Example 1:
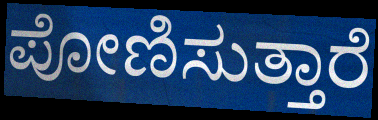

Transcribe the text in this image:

ಪೋಣಿಸುತ್ತಾರೆ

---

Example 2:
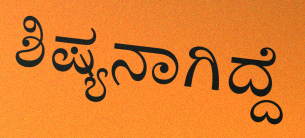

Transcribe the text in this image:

ಶಿಷ್ಯನಾಗಿದ್ದೆ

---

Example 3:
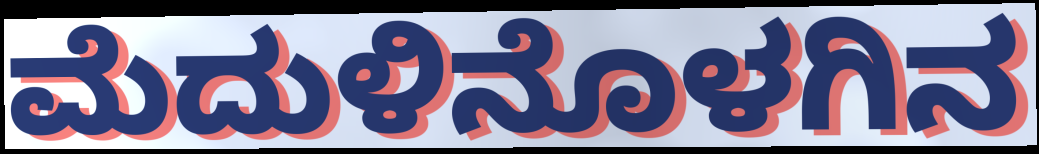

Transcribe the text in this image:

ಮೆದುಳಿನೊಳಗಿನ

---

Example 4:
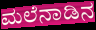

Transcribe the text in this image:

ಮಲೆನಾಡಿನ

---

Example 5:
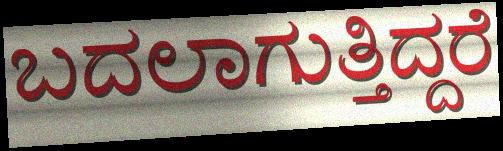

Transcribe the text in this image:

ಬದಲಾಗುತ್ತಿದ್ದರೆ